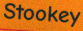
Stookey